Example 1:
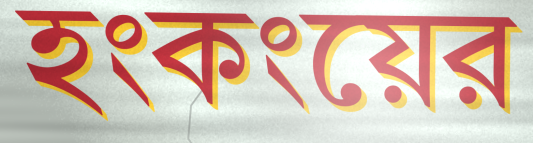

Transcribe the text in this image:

হংকংয়ের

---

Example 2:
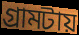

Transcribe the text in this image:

গ্রামটায়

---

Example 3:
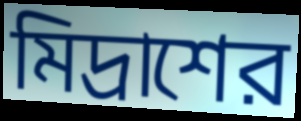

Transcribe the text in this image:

মিদ্রাশের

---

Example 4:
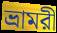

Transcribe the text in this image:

ভ্রামরী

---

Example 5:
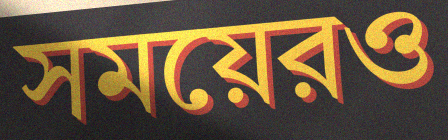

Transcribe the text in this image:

সময়েরও